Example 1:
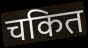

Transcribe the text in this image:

चकित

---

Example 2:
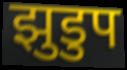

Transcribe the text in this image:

झुडुप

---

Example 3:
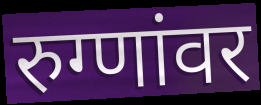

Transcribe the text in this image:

रुग्णांवर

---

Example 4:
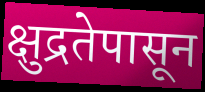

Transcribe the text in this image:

क्षुद्रतेपासून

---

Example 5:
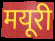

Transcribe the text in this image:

मयूरी